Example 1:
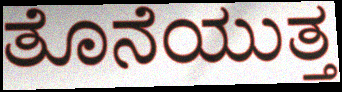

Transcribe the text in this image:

ತೊನೆಯುತ್ತ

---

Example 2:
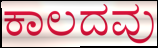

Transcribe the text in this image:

ಕಾಲದವು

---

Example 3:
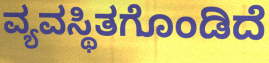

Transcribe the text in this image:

ವ್ಯವಸ್ಥಿತಗೊಂಡಿದೆ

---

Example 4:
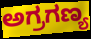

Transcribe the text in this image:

ಅಗ್ರಗಣ್ಯ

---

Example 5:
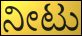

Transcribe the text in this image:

ನೀಟು